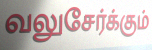
வலுசேர்க்கும்